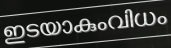
ഇടയാകുംവിധം